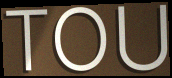
TOU